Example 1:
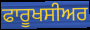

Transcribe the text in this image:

ਫਾਰੂਖਸੀਅਰ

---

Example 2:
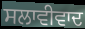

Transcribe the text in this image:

ਸਲਾਵੀਵਾਦ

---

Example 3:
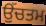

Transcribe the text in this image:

ਉੱਚਤਮ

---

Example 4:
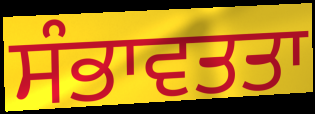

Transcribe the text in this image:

ਸੰਭਾਵਤਤਾ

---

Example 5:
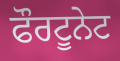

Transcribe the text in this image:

ਫੌਰਟੂਨੇਟ